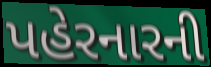
પહેરનારની